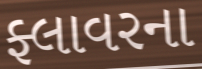
ફ્લાવરના